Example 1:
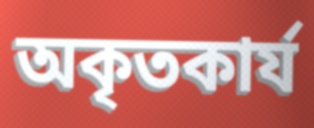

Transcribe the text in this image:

অকৃতকাৰ্য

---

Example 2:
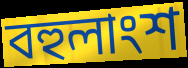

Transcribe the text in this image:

বহুলাংশ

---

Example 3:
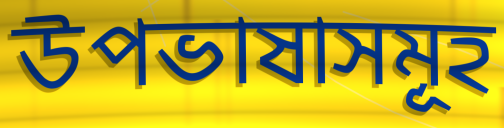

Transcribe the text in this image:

উপভাষাসমূহ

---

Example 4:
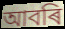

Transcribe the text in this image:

আবৰি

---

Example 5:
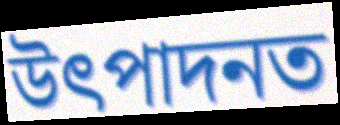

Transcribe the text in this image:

উৎপাদনত